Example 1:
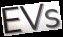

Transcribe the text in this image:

EVs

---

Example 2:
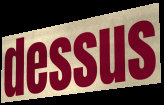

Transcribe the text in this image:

dessus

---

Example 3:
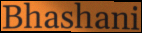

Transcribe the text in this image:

Bhashani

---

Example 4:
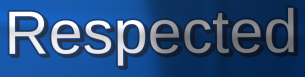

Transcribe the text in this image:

Respected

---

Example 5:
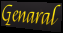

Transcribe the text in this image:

Genaral